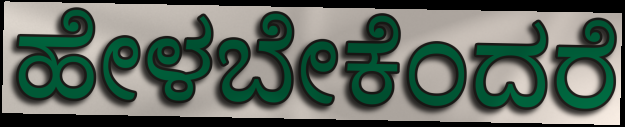
ಹೇಳಬೇಕೆಂದರೆ